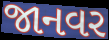
જાનવર